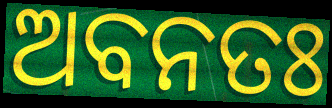
ଅବନତଃ